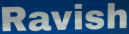
Ravish